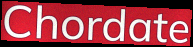
Chordate